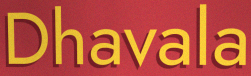
Dhavala